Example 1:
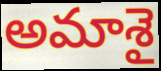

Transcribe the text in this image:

అమాశై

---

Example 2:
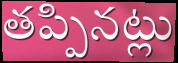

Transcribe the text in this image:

తప్పినట్లు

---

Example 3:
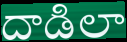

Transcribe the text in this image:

దాడిలా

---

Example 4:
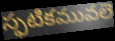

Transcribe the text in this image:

స్ఫటికమువలె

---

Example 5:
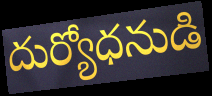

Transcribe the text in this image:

దుర్యోధనుడి